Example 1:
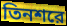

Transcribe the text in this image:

তিনশরে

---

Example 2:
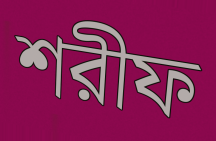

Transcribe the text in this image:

শরীফ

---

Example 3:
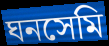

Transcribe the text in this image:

ঘনসেমি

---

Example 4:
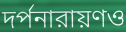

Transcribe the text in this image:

দর্পনারায়ণও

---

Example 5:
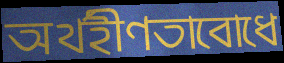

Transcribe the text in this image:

অর্থহীণতাবোধে